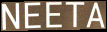
NEETA